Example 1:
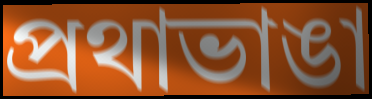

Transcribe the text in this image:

প্রথাভাঙা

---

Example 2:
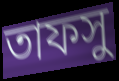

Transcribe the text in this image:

তাফসু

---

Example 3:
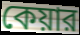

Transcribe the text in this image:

কেয়ার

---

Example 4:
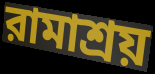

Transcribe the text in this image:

রামাশ্রয়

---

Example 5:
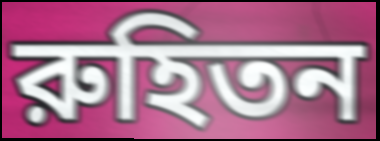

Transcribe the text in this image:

রুহিতন